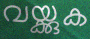
വയ്ക്കുക